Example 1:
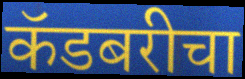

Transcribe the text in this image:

कॅडबरीचा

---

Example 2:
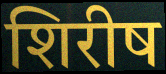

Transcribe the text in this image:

शिरीष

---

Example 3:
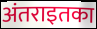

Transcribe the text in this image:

अंतराइतका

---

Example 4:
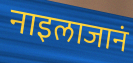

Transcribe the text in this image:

नाइलाजानं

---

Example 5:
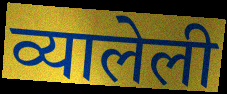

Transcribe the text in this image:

व्यालेली